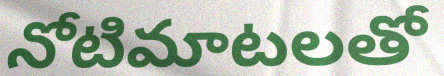
నోటిమాటలతో